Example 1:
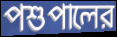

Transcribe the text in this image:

পশুপালের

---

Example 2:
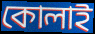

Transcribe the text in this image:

কোলাই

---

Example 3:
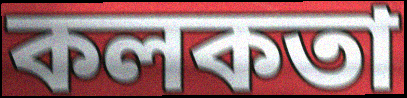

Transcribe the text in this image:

কলকতা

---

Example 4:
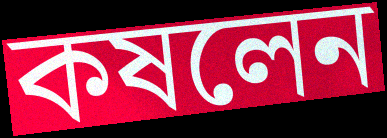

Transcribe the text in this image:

কষলেন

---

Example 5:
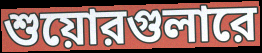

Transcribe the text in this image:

শুয়োরগুলারে